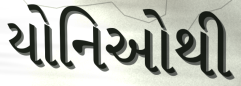
યોનિઓથી